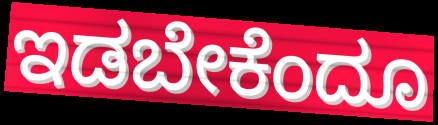
ಇಡಬೇಕೆಂದೂ